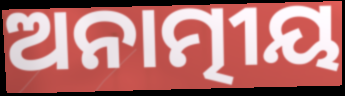
ଅନାତ୍ମୀୟ